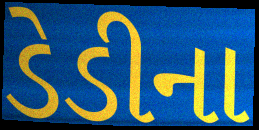
ડેડીના